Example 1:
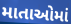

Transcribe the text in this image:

માતાઓમાં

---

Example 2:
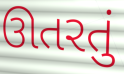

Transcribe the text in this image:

ઊતરતું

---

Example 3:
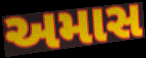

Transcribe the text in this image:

અમાસ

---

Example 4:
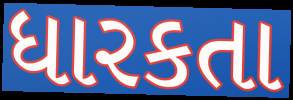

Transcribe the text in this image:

ધારકતા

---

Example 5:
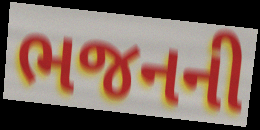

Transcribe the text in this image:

ભજનની